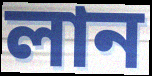
লান